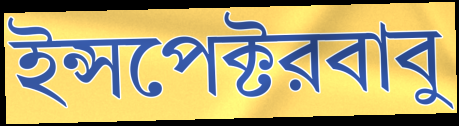
ইন্সপেক্টরবাবু